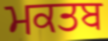
ਮਕਤਬ